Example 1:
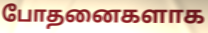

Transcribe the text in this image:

போதனைகளாக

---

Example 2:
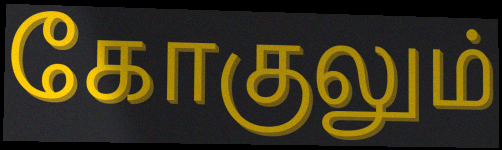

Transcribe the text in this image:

கோகுலும்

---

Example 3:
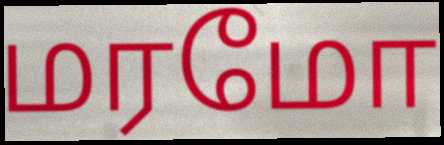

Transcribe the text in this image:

மரமோ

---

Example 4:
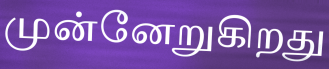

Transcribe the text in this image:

முன்னேறுகிறது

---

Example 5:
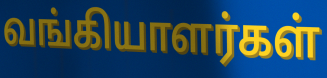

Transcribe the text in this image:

வங்கியாளர்கள்